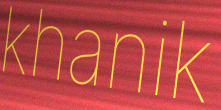
khanik